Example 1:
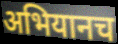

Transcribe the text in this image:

अभियानच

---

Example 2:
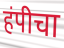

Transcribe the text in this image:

हंपीचा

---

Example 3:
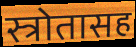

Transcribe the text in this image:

स्त्रोतासह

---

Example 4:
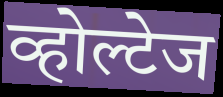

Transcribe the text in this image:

व्होल्टेज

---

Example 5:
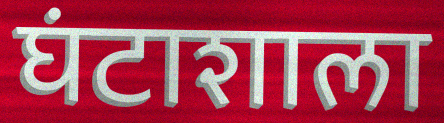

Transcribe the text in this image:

घंटाशाला